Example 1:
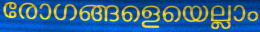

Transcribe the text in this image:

രോഗങ്ങളെയെല്ലാം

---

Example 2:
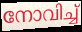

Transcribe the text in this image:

നോവിച്ച്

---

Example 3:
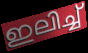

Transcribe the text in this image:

ഇലിച്ച്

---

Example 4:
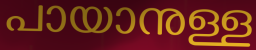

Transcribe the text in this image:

പായാനുള്ള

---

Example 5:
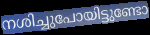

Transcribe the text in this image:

നശിച്ചുപോയിട്ടുണ്ടോ